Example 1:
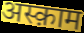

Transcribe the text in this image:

अस्क़ाम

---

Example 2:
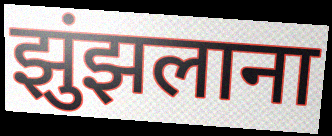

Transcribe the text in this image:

झुंझलाना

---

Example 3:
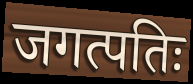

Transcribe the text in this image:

जगत्पतिः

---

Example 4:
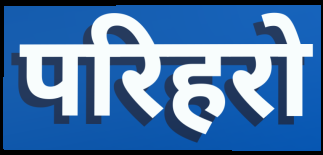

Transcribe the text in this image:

परिहरो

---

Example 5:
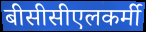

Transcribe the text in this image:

बीसीसीएलकर्मी